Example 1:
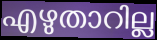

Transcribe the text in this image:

എഴുതാറില്ല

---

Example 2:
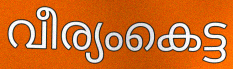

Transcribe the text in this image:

വീര്യംകെട്ട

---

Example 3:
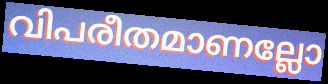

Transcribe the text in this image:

വിപരീതമാണല്ലോ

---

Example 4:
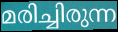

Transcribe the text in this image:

മരിച്ചിരുന്ന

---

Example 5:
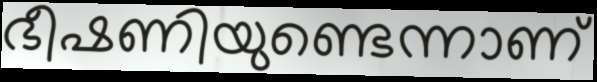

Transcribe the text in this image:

ഭീഷണിയുണ്ടെന്നാണ്